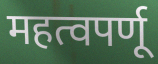
महत्‍वपर्णू